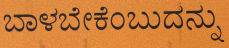
ಬಾಳಬೇಕೆಂಬುದನ್ನು